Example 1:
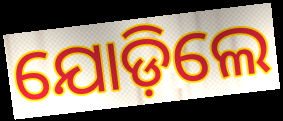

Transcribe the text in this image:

ଯୋଡ଼ିଲେ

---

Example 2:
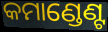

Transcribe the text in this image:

କମାଣ୍ଡେଣ୍ଟ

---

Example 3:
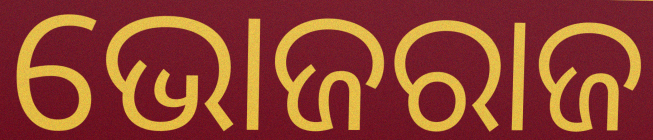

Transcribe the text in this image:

ଭୋଜରାଜ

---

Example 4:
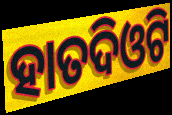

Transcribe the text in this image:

ହାତଦିଓଟି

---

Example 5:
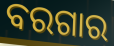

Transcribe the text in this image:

ବରଗାର